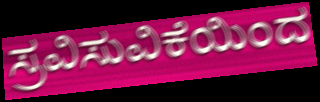
ಸ್ರವಿಸುವಿಕೆಯಿಂದ